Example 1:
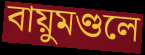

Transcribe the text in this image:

বায়ুমণ্ডলে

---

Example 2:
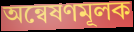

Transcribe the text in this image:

অন্বেষণমূলক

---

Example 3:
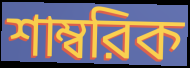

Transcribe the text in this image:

শাম্বরিক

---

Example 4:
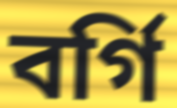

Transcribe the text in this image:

বর্গি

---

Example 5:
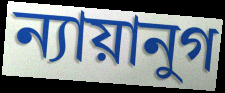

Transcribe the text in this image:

ন্যায়ানুগ